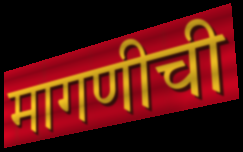
मागणीची